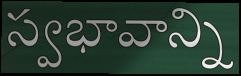
స్వభావాన్ని